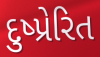
દુષ્પ્રેરિત